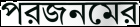
পরজনমের